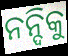
ନନ୍ଦିକୁ